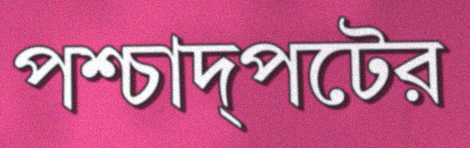
পশ্চাদ্পটের